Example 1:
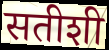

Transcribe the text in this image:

सतीशी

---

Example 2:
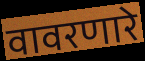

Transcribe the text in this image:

वावरणारे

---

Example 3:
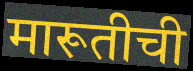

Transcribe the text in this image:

मारूतीची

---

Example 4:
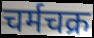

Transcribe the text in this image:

चर्मचक्र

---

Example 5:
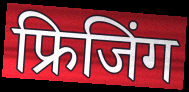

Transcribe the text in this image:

फ्रिजिंग